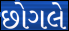
છોગલે